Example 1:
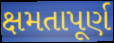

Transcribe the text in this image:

ક્ષમતાપૂર્ણ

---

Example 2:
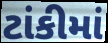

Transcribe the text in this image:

ટાંકીમાં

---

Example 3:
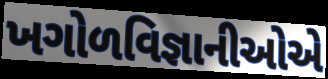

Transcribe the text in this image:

ખગોળવિજ્ઞાનીઓએ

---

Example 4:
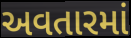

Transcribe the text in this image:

અવતારમાં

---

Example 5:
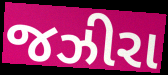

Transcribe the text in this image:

જઝીરા